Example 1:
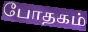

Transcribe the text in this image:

போதகம்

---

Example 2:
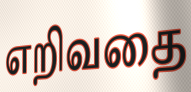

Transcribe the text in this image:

எறிவதை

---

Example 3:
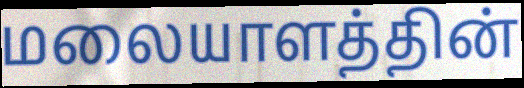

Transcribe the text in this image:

மலையாளத்தின்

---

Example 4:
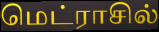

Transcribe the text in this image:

மெட்ராசில்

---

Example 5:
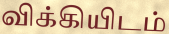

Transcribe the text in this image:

விக்கியிடம்